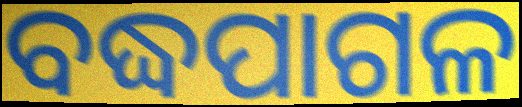
ବଦ୍ଧପାଗଳ